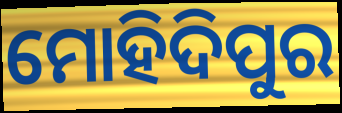
ମୋହିଦିପୁର